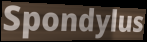
Spondylus